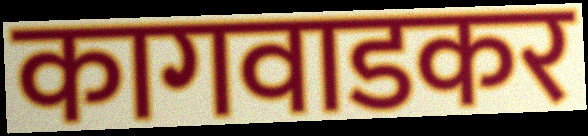
कागवाडकर